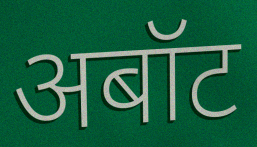
अबॉट